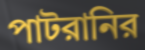
পাটরানির